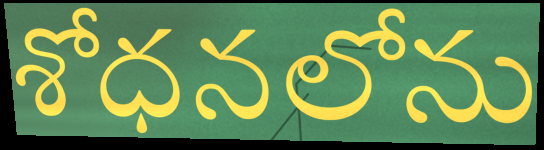
శోధనలోను